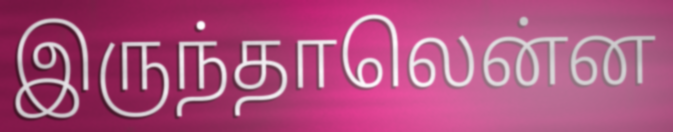
இருந்தாலென்ன